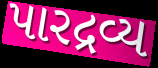
પારદ્રવ્ય